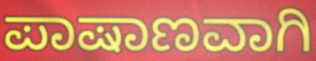
ಪಾಷಾಣವಾಗಿ